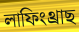
লাফিংথ্ৰাছ